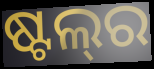
ଷ୍ଟଲ୍‌ର